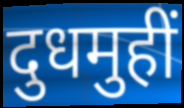
दुधमुहीं